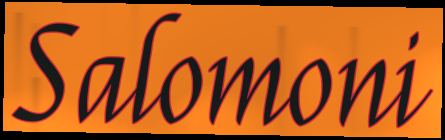
Salomoni